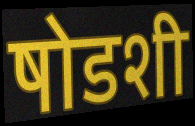
षोडशी